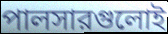
পালসারগুলোই